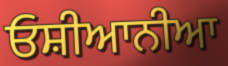
ਓਸ਼ੀਆਨੀਆ